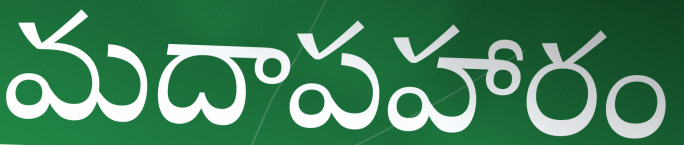
మదాపహారం